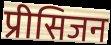
प्रीसिजन